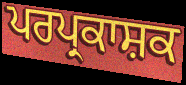
ਪਰਪ੍ਰਕਾਸ਼ਕ